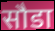
सौडा